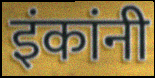
इंकांनी